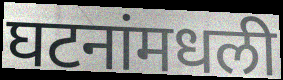
घटनांमधली